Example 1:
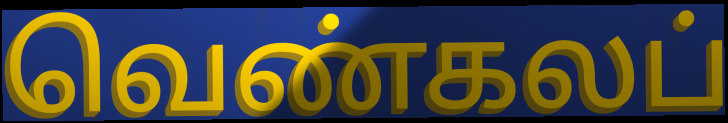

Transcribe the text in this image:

வெண்கலப்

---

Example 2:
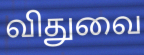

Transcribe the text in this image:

விதுவை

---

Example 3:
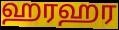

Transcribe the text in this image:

ஹரஹர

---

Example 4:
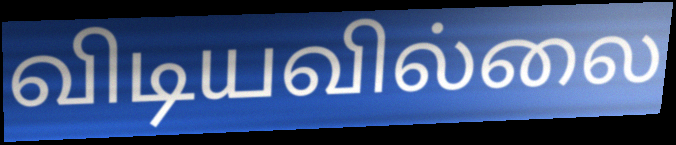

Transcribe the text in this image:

விடியவில்லை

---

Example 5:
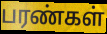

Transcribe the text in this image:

பரண்கள்